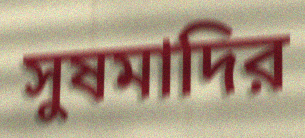
সুষমাদির